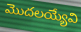
మొదలయ్యేవి